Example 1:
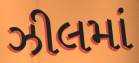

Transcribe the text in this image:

ઝીલમાં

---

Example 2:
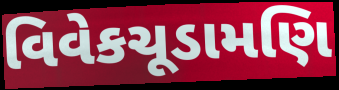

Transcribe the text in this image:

વિવેકચૂડામણિ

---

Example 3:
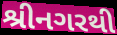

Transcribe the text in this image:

શ્રીનગરથી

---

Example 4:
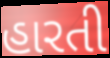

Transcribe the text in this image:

હારતી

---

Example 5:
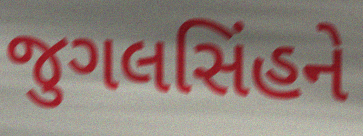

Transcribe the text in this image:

જુગલસિંહને